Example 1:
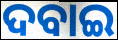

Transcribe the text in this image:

ଦବାଇ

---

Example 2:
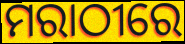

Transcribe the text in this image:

ମରାଠୀରେ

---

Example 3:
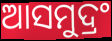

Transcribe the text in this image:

ଆସମୁଦ୍ରଂ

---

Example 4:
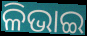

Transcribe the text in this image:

ଳିଭାଇ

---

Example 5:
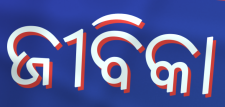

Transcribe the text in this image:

ଜୀବିକା